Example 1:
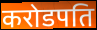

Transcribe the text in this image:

करोडपति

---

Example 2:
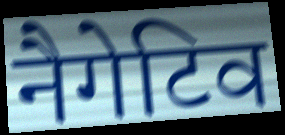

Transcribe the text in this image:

नैगेटिव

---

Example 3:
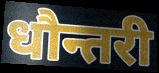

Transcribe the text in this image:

धौन्तरी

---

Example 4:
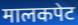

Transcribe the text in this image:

मालकपेट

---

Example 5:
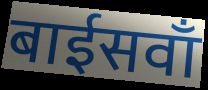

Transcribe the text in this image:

बाईसवाँ